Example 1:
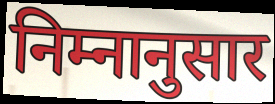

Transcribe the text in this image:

निम्नानुसार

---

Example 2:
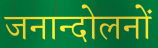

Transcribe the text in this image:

जनान्दोलनों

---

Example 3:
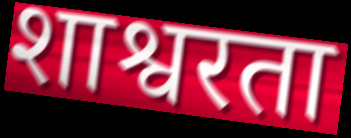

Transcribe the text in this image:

शाश्वरता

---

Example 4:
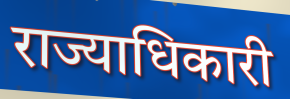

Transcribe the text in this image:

राज्याधिकारी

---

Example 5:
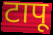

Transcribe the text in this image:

टापू